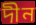
দীন